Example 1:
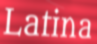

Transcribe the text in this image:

Latina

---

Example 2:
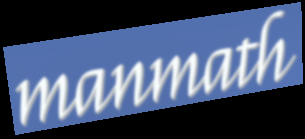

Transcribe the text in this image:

manmath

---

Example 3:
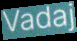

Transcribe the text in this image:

Vadaj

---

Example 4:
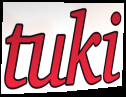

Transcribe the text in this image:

tuki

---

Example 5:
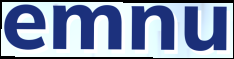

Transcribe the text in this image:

emnu